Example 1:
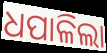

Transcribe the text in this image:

ଧପାଳିଲା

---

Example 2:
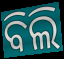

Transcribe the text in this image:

ବିଲି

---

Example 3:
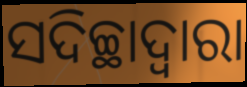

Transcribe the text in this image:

ସଦିଚ୍ଛାଦ୍ୱାରା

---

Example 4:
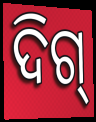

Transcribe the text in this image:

ଦିଗ୍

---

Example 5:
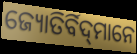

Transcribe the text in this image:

ଜ୍ୟୋତିର୍ବିଦ୍‌ମାନେ